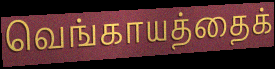
வெங்காயத்தைக்